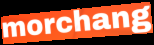
morchang